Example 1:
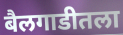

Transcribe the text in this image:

बैलगाडीतला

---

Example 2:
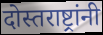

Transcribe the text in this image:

दोस्तराष्ट्रांनी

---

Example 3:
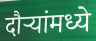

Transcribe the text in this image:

दौऱ्यांमध्ये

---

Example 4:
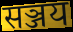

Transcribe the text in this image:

सञ्जय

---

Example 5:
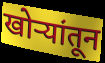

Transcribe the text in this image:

खोऱ्यांतून